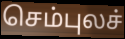
செம்புலச்